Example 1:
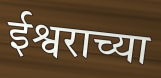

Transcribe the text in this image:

ईश्वराच्या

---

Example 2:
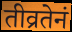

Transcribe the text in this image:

तीव्रतेनं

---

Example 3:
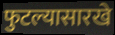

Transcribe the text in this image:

फुटल्यासारखे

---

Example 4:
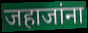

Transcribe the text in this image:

जहाजांना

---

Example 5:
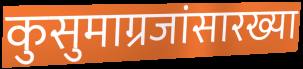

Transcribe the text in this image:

कुसुमाग्रजांसारख्या